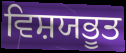
ਵਿਸ਼ਯਭੂਤ